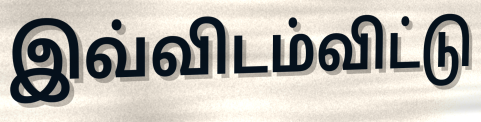
இவ்விடம்விட்டு